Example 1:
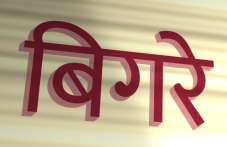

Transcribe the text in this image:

बिगरे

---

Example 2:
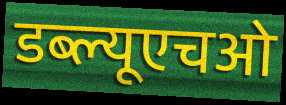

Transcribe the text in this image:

डब्ल्यूएचओ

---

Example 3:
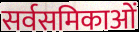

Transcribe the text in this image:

सर्वसमिकाओं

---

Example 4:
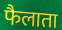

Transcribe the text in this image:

फैलाता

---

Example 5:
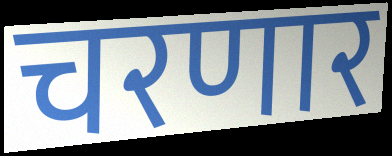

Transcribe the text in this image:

चरणार